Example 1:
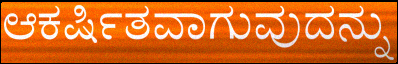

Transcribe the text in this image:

ಆಕರ್ಷಿತವಾಗುವುದನ್ನು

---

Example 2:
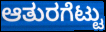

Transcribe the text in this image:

ಆತುರಗೆಟ್ಟು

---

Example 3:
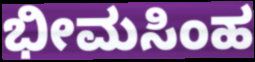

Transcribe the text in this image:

ಭೀಮಸಿಂಹ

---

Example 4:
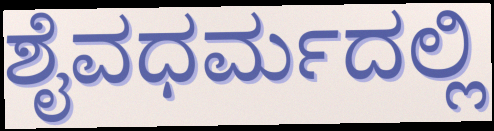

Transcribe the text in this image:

ಶೈವಧರ್ಮದಲ್ಲಿ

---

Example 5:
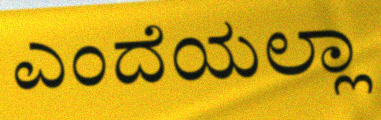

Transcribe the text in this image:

ಎಂದೆಯಲ್ಲಾ